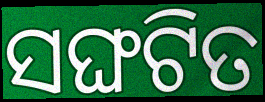
ସଙ୍ଘଟିତ